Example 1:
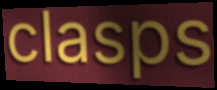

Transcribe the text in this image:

clasps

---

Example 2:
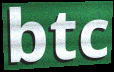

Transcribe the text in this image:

btc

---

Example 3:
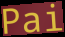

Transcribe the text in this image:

Pai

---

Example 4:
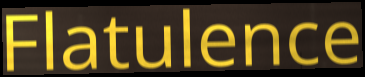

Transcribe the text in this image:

Flatulence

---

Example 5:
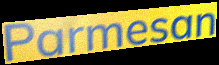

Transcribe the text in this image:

Parmesan